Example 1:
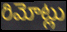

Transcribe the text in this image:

రిమోట్లు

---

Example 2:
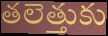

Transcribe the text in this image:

తలెత్తుకు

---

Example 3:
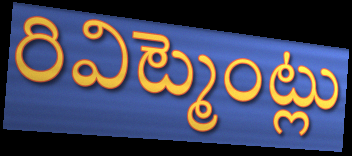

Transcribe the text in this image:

రివిట్మెంట్లు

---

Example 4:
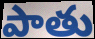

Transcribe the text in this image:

పాతు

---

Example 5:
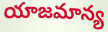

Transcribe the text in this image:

యాజమాన్య